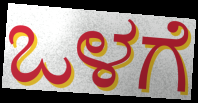
ಒಳಗೆ